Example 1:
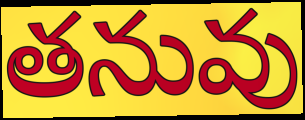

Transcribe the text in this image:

తనువు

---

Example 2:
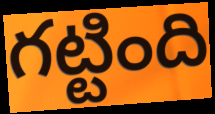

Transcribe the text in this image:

గట్టింది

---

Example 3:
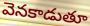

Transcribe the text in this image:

వెనకాడుతూ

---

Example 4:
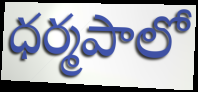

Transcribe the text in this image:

ధర్మపాలో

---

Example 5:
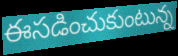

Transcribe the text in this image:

ఈసడించుకుంటున్న